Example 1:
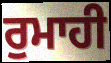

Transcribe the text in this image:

ਰੁਮਾਹੀ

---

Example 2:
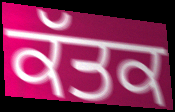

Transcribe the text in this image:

ਕੱਤਕ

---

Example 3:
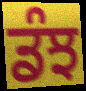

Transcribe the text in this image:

ਡੰਝ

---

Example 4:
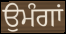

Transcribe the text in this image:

ਉਮੰਗਾਂ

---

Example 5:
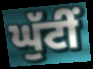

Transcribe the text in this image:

ਘੁੱਟੀਂ